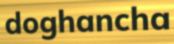
doghancha